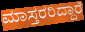
ಮಾಸ್ತರರಿದ್ದಾರೆ